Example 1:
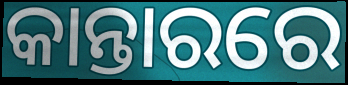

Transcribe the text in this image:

କାନ୍ତାରରେ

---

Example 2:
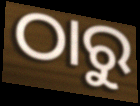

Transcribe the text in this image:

ଠାରୁ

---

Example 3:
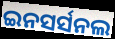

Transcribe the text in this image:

ଇନସର୍ସନଲ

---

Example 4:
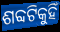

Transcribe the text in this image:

ଶବ୍ଦଟିକୁହିଁ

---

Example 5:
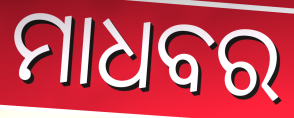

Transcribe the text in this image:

ମାଧବର